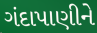
ગંદાપાણીને